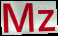
Mz